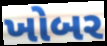
ખોબર